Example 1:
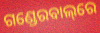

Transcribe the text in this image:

ଗଣ୍ଡେରବାଲ୍‌ରେ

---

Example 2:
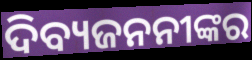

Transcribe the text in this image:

ଦିବ୍ୟଜନନୀଙ୍କର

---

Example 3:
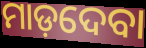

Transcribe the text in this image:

ମାଡ଼ଦେବା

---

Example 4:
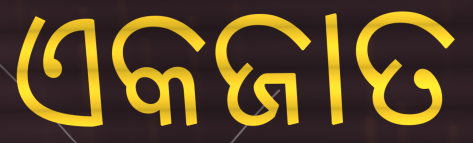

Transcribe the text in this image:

ଏକଜାତ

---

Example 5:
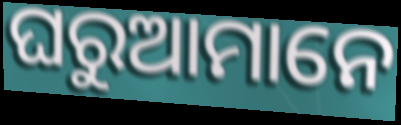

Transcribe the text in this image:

ଘରୁଆମାନେ